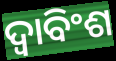
ଦ୍ୱାବିଂଶ